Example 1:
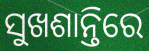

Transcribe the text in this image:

ସୁଖଶାନ୍ତିରେ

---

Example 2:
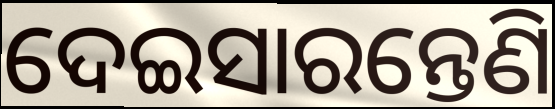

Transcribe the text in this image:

ଦେଇସାରନ୍ତେଣି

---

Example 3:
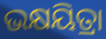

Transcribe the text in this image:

ଭକ୍ଷୟିତ୍ରା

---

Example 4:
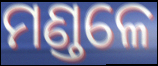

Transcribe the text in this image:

ମଣ୍ଡଳେ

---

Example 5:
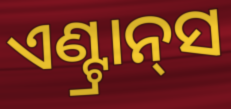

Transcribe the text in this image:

ଏଣ୍ଟ୍ରାନ୍‌ସ